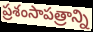
ప్రశంసాపత్రాన్ని